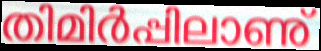
തിമിർപ്പിലാണു്